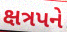
ક્ષત્રપને